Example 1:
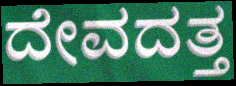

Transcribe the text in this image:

ದೇವದತ್ತ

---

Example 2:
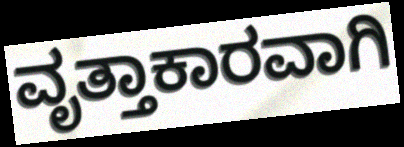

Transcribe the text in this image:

ವೃತ್ತಾಕಾರವಾಗಿ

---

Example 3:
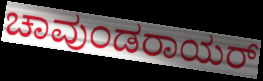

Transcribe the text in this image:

ಚಾವುಂಡರಾಯರ್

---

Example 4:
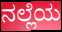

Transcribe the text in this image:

ನಲ್ಲೆಯ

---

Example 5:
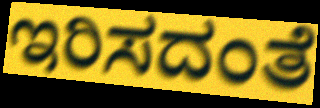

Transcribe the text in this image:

ಇರಿಸದಂತೆ